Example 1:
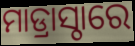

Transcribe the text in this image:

ମାଡ୍ରାସ୍ଠାରେ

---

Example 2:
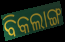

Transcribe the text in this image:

ବିକଲାଙ୍ଗ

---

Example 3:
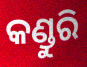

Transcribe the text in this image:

କଣ୍ଡୁରି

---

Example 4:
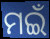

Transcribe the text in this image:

ମଇଁ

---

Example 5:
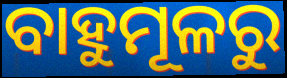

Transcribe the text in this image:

ବାହୁମୂଳରୁ